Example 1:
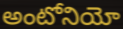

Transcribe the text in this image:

అంటోనియో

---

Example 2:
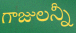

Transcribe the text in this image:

గాజులన్నీ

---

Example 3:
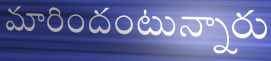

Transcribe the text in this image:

మారిందంటున్నారు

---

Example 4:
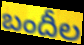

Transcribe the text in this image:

బందీల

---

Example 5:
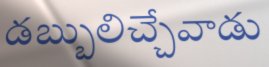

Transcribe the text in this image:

డబ్బులిచ్చేవాడు